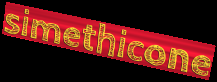
simethicone